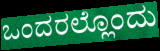
ಒಂದರಲ್ಲೊಂದು